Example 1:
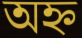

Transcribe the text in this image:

অহ্ন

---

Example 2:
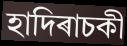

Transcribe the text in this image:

হাদিৰাচকী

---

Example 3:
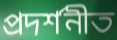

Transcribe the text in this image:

প্ৰদৰ্শনীত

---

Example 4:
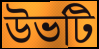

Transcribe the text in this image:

উভটি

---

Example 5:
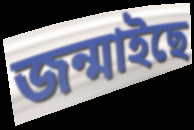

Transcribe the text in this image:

জন্মাইছে